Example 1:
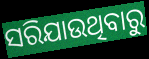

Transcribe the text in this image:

ସରିଯାଉଥିବାରୁ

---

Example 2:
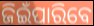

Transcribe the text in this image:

ଜିଇଁପାରିବେ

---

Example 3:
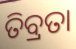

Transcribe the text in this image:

ତିବ୍ରତା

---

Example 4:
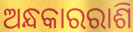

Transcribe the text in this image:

ଅନ୍ଧକାରରାଶି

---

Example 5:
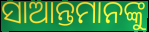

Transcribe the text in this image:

ସାଆନ୍ତମାନଙ୍କୁ